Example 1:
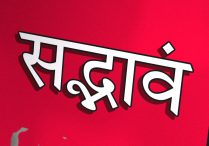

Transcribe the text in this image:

सद्भावं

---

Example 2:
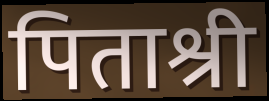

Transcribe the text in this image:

पिताश्री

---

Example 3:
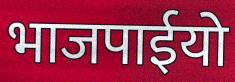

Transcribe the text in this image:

भाजपाईयो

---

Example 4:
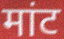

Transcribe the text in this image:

मांट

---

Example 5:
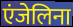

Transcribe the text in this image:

एंजेलिना